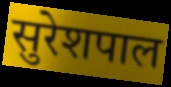
सुरेशपाल